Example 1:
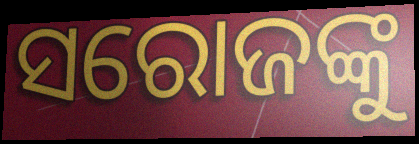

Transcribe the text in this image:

ସରୋଜଙ୍କୁ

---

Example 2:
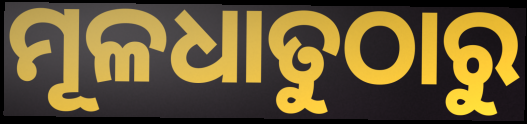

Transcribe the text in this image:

ମୂଳଧାତୁଠାରୁ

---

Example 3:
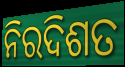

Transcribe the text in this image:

ନିରଦିଶତ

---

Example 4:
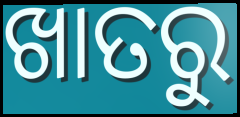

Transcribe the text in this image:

ଖାତରୁ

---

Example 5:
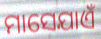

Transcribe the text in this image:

ମାସେଯାଏଁ